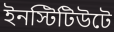
ইনস্টিটিউটে